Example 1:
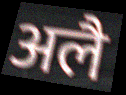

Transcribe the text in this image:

अलै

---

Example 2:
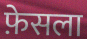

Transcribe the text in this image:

फ़ेसला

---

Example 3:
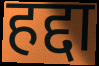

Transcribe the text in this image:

हद्दा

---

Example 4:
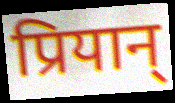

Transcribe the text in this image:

प्रियान्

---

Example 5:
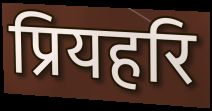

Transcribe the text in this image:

प्रियहरि